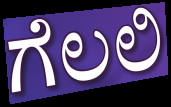
ಗೆಲಲಿ